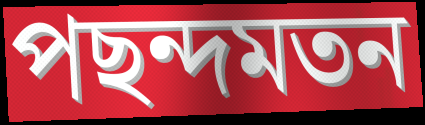
পছন্দমতন